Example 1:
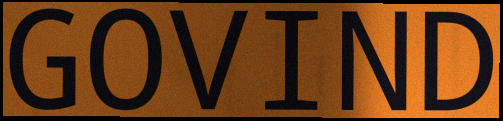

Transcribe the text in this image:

GOVIND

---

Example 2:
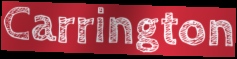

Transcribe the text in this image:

Carrington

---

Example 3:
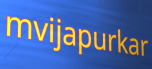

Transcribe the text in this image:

mvijapurkar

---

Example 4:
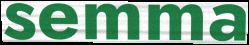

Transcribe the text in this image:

semma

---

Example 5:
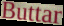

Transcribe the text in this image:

Buttar